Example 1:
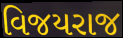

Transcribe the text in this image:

વિજયરાજ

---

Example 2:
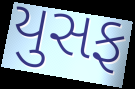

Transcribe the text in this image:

યુસફ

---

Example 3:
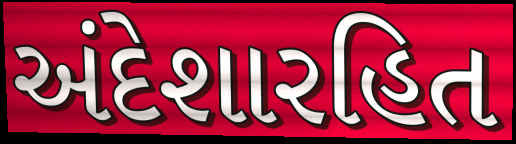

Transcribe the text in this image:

અંદેશારહિત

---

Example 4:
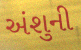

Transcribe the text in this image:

અંશુની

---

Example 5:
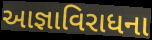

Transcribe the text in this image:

આજ્ઞાવિરાધના